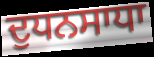
ਦੁਧਨਸਾਧਾ